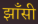
झाँसी